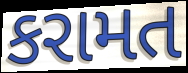
કરામત